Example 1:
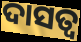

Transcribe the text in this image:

ଦାସତ୍ବ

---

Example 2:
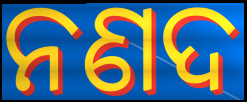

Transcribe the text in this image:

ନଣଦ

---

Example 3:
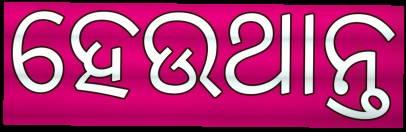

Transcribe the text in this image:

ହେଉଥାନ୍ତ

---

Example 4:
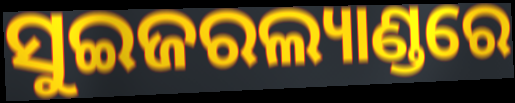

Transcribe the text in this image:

ସୁଇଜରଲ୍ୟାଣ୍ଡରେ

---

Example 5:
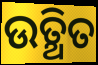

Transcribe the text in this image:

ଉତ୍ଥିତ